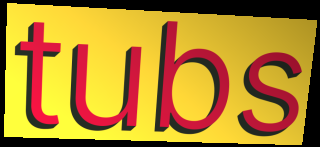
tubs